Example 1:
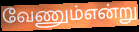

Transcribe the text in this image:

வேணும்என்று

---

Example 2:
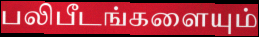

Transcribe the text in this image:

பலிபீடங்களையும்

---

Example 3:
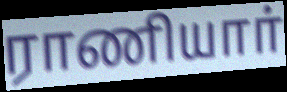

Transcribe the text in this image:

ராணியார்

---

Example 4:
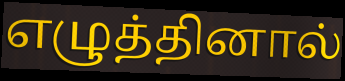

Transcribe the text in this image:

எழுத்தினால்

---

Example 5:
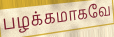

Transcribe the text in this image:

பழக்கமாகவே